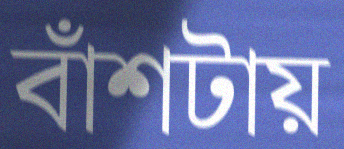
বাঁশটায়